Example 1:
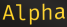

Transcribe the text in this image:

Alpha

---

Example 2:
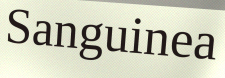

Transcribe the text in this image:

Sanguinea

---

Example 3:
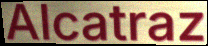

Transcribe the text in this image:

Alcatraz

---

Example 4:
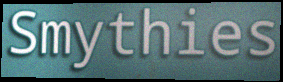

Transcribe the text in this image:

Smythies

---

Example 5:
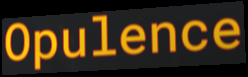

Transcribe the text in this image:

Opulence